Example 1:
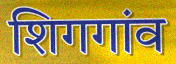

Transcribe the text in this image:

शिगगांव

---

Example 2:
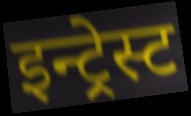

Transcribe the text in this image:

इन्ट्रेस्ट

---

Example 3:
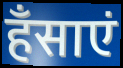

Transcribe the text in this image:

हँसाएं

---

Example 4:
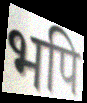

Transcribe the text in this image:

भपि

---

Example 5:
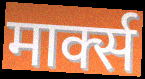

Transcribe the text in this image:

मार्क्‍स